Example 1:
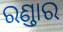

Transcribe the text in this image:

ରଣ୍ଡାର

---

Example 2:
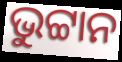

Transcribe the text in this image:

ଭୁଟ୍ଟାନ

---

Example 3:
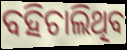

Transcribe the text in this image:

ବହିଚାଲିଥିବ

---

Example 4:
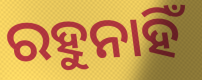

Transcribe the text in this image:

ରହୁନାହିଁ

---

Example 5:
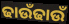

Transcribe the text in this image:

ଢାଉଁଢାଉଁ